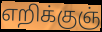
எறிக்குஞ்